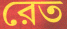
রেত